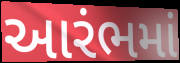
આરંભમાં